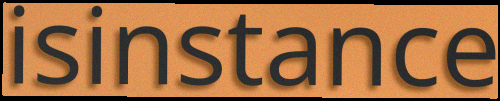
isinstance